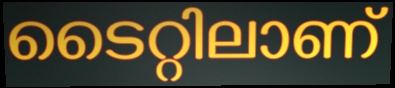
ടൈറ്റിലാണ്